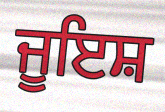
ਜੂਇਸ਼